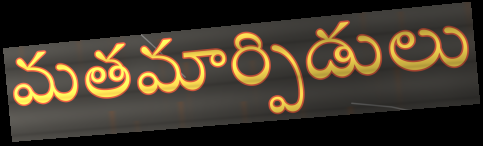
మతమార్పిడులు